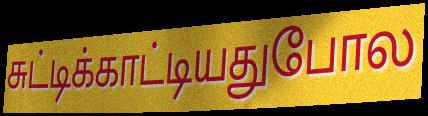
சுட்டிக்காட்டியதுபோல